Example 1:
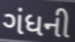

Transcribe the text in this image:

ગંધની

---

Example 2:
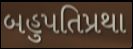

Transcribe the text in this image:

બહુપતિપ્રથા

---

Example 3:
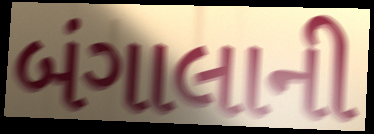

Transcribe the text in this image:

બંગાલાની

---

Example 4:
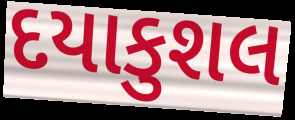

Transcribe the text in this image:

દયાકુશલ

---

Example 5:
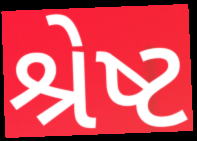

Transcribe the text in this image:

શ્રેષ્ટ